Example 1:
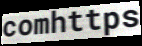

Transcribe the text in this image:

comhttps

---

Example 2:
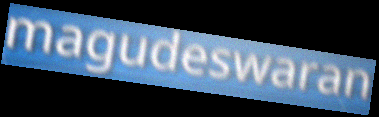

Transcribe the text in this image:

magudeswaran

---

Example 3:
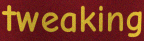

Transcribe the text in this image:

tweaking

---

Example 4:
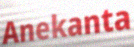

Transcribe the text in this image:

Anekanta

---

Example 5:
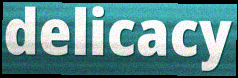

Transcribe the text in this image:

delicacy